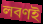
লবণই